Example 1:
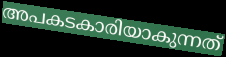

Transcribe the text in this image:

അപകടകാരിയാകുന്നത്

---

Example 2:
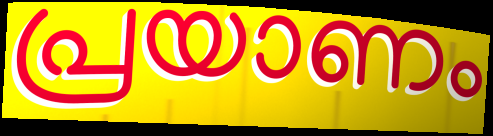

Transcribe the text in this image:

പ്രയാണം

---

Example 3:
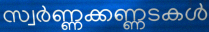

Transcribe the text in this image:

സ്വർണ്ണക്കണ്ണടകൾ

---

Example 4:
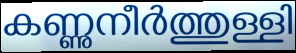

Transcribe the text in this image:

കണ്ണുനീർത്തുള്ളി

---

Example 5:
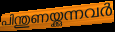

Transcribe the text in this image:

പിന്തുണയ്ക്കുന്നവർ